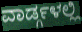
ವಾರ್ಡ್ಗಳಲ್ಲಿ